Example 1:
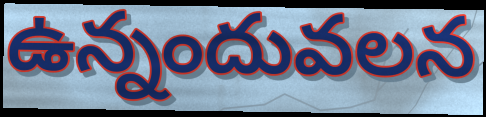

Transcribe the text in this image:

ఉన్నందువలన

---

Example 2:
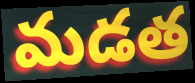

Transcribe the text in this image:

మడత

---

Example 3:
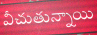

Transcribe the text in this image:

వీచుతున్నాయి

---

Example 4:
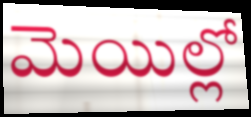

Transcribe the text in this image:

మెయిల్లో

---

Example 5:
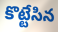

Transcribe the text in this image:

కొట్టేసిన